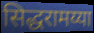
सिद्धरामय्या